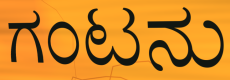
ಗಂಟನು